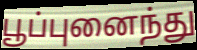
பூப்புனைந்து